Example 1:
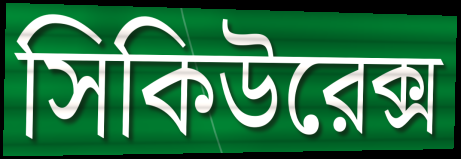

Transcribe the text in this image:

সিকিউরেক্স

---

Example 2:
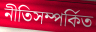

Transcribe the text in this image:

নীতিসম্পর্কিত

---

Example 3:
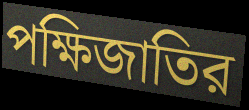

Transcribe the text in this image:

পক্ষিজাতির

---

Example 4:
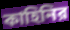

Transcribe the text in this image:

কাহিনির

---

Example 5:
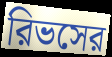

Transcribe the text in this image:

রিভসের